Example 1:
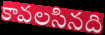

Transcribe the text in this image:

కావలసినది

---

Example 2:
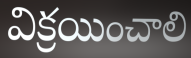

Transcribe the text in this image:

విక్రయించాలి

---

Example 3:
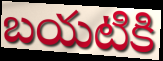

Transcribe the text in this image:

బయటికి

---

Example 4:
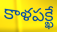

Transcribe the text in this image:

కాళపక్ఖే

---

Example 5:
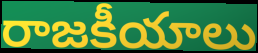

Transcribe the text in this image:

రాజకీయాలు